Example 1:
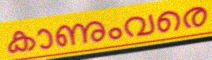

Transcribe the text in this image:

കാണുംവരെ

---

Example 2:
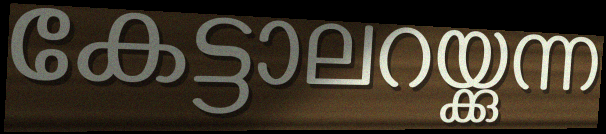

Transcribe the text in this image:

കേട്ടാലറയ്ക്കുന്ന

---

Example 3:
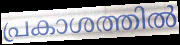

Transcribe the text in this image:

പ്രകാശത്തിൽ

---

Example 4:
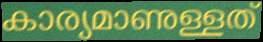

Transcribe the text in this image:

കാര്യമാണുള്ളത്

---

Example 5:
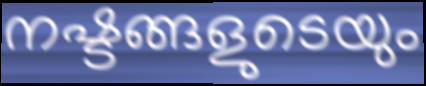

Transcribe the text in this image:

നഷ്ടങ്ങളുടെയും